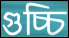
গুচ্চি